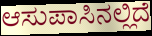
ಆಸುಪಾಸಿನಲ್ಲಿದೆ